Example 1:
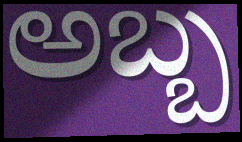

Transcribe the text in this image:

అబ్బ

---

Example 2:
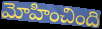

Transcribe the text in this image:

మోహించింది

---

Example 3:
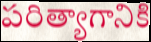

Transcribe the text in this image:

పరిత్యాగానికి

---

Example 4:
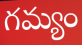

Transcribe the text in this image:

గమ్యం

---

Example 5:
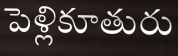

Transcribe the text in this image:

పెళ్లికూతురు